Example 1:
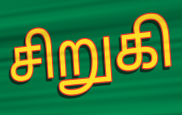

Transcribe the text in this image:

சிறுகி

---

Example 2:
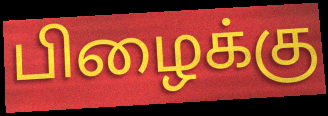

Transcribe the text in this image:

பிழைக்கு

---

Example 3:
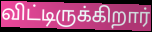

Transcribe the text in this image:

விட்டிருக்கிறார்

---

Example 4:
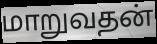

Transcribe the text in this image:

மாறுவதன்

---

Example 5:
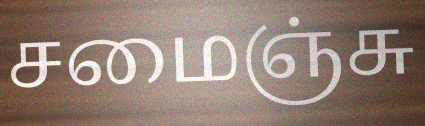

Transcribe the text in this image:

சமைஞ்சு